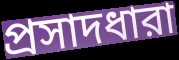
প্রসাদধারা